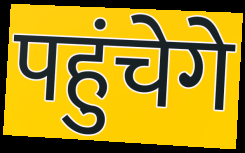
पहुंचेगे